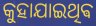
କୁହାଯାଇଥିଵ